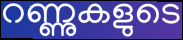
റണ്ണുകളുടെ